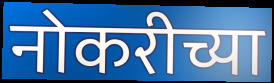
नोकरीच्या